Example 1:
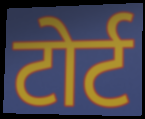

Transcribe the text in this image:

टोर्ट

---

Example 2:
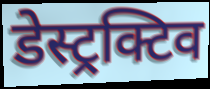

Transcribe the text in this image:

डेस्ट्रक्टिव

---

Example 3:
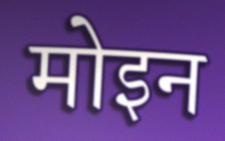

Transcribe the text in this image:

मोइन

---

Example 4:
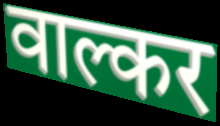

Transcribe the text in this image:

वाल्कर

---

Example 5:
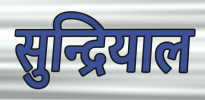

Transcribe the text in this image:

सुन्द्रियाल